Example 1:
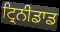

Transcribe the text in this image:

ਟ੍ਰਿਨੀਡਾਡ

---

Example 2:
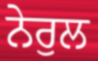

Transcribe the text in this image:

ਨੇਰੁਲ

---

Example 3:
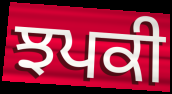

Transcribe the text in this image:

ਝਪਕੀ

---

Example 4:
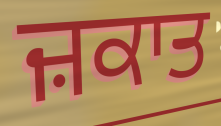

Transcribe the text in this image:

ਜ਼ਕਾਤ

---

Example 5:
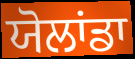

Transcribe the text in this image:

ਯੋਲਾਂਡਾ